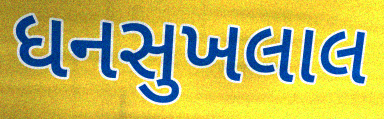
ધનસુખલાલ